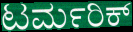
ಟರ್ಮರಿಕ್